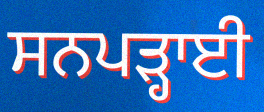
ਸਨਪੜ੍ਹਾਈ